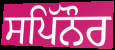
ਸਪਿੱਨੌਰ